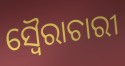
ସ୍ୱୈରାଚାରୀ